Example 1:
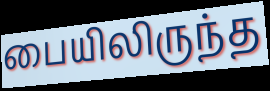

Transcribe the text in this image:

பையிலிருந்த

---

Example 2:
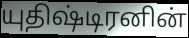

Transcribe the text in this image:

யுதிஷ்டிரனின்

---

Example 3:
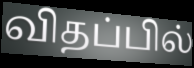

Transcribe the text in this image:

விதப்பில்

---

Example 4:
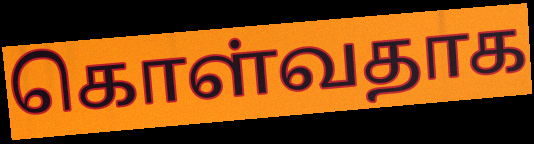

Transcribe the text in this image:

கொள்வதாக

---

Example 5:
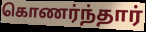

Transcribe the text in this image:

கொணர்ந்தார்